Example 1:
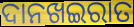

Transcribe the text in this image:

ଦାନଖଇରାତ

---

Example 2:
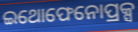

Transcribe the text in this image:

ଇଥୋଫେନୋପ୍ରକ୍ସ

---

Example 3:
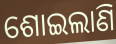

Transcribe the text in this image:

ଶୋଇଲାଣି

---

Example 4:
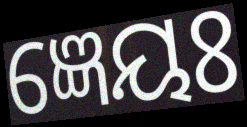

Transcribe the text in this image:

ଜ୍ଞେୟଃ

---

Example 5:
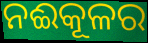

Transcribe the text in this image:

ନଈକୂଳର